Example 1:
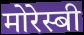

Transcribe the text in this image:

मोरेस्बी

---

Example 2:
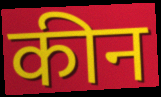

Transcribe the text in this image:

कीन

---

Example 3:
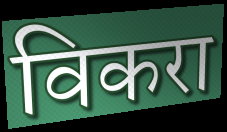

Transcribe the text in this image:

विकरा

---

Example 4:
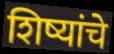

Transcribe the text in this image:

शिष्यांचे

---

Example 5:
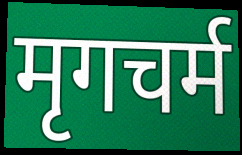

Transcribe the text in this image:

मृगचर्म